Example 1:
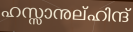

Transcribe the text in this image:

ഹസ്സാനുല്ഹിന്ദ്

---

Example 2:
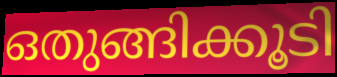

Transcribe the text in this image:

ഒതുങ്ങിക്കൂടി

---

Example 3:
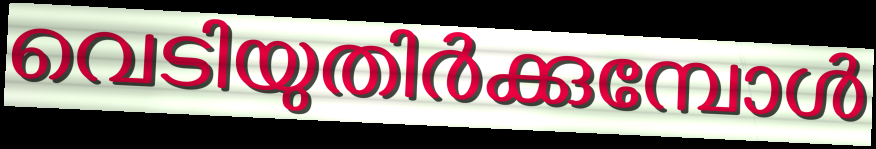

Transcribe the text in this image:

വെടിയുതിർക്കുമ്പോൾ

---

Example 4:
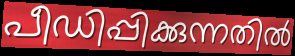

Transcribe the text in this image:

പീഡിപ്പിക്കുന്നതിൽ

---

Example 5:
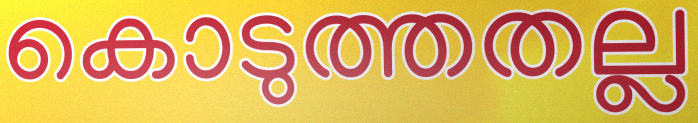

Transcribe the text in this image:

കൊടുത്തതല്ല